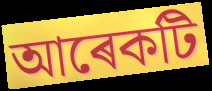
আৰেকটি